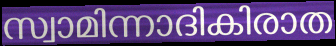
സ്വാമിന്നാദികിരാത